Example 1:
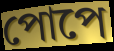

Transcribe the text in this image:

পোপে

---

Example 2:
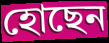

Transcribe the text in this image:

হোছেন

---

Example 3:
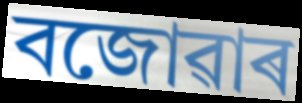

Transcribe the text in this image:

বজোৱাৰ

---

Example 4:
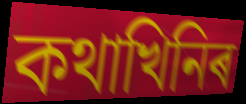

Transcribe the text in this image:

কথাখিনিৰ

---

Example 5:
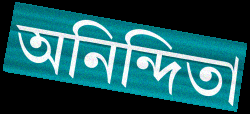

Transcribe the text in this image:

অনিন্দিতা